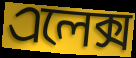
এলেক্স